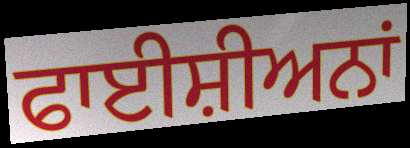
ਫਾਈਸ਼ੀਅਨਾਂ